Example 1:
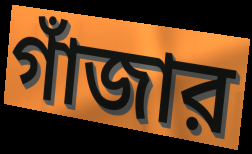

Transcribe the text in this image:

গাঁজার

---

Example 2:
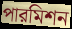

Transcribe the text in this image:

পারমিশন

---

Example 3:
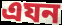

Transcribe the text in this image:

এযন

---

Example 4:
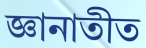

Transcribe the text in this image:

জ্ঞানাতীত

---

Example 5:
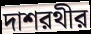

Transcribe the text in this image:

দাশরথীর